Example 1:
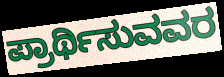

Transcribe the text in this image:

ಪ್ರಾರ್ಥಿಸುವವರ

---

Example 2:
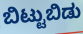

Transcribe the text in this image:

ಬಿಟ್ಟುಬಿಡು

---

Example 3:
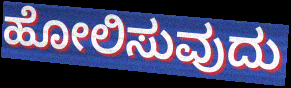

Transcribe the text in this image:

ಹೋಲಿಸುವುದು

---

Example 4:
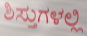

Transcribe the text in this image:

ಶಿಸ್ತುಗಳಲ್ಲಿ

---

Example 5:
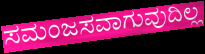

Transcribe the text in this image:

ಸಮಂಜಸವಾಗುವುದಿಲ್ಲ